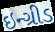
ઇન્ગ્રીડ